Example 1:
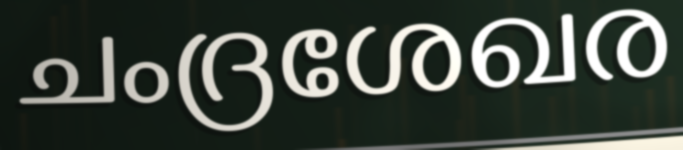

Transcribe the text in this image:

ചംദ്രശേഖര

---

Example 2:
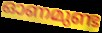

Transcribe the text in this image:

ഓണമുണ്ട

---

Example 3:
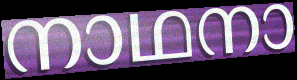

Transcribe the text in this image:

നാഥനാ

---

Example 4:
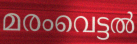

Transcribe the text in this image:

മരംവെട്ടൽ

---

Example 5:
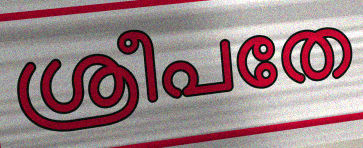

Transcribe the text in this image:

ശ്രീപതേ